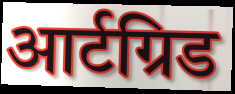
आर्टग्रिड